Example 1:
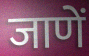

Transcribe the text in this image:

जाणें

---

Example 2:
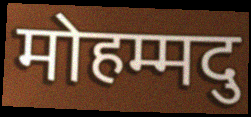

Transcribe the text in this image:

मोहम्मदु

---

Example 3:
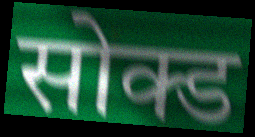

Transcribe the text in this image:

सोक्ड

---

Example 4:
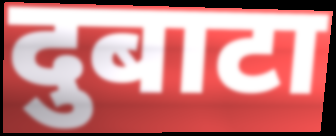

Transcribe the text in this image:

दुबाटा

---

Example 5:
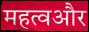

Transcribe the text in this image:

महत्वऔर